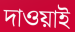
দাওয়াই